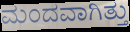
ಮಂದವಾಗಿತ್ತು